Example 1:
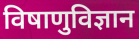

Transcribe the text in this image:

विषाणुविज्ञान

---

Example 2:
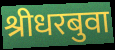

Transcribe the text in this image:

श्रीधरबुवा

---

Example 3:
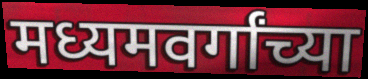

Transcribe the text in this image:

मध्यमवर्गांच्या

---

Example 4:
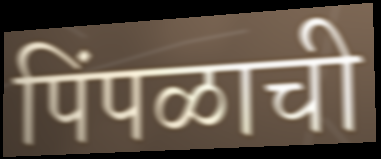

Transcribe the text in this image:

पिंपळाची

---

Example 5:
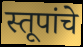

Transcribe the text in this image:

स्तूपांचे